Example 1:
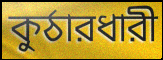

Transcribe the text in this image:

কুঠারধারী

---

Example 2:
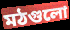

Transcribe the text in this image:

মঠগুলো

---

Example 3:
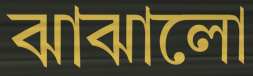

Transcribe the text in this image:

ঝাঝালো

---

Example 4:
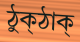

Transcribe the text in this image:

ঠুক্ঠাক্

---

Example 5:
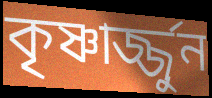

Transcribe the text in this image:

কৃষ্ণার্জ্জুন